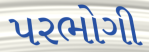
પરભોગી